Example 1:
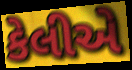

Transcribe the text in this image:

કેલીએ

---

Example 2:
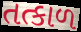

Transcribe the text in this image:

તત્કાળ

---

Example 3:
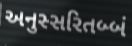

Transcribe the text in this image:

અનુસ્સરિતબ્બં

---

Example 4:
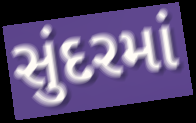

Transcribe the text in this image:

સુંદરમાં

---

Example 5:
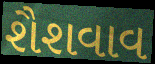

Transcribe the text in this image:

શૈશવાવ